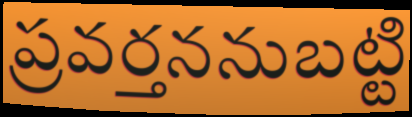
ప్రవర్తననుబట్టి